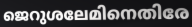
ജെറുശലേമിനെതിരേ